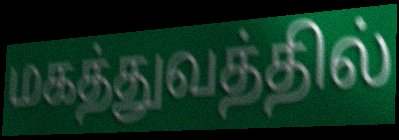
மகத்துவத்தில்